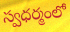
స్వధర్మంలో